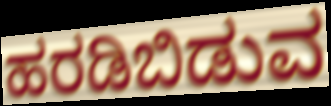
ಹರಡಿಬಿಡುವ